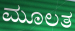
ಮೂಲತ